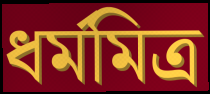
ধর্মমিত্র